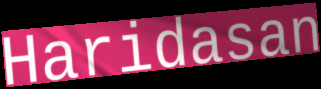
Haridasan